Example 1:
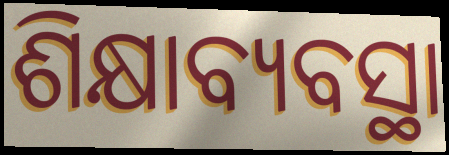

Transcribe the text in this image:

ଶିକ୍ଷାବ୍ୟବସ୍ଥା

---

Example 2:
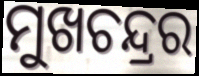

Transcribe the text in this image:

ମୁଖଚନ୍ଦ୍ରର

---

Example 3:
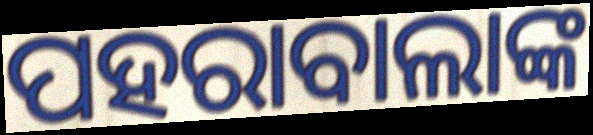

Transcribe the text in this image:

ପହରାବାଲାଙ୍କ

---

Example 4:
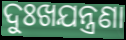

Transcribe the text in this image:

ଦୁଃଖଯନ୍ତ୍ରଣା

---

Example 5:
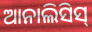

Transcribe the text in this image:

ଆନାଲିସିସ୍